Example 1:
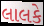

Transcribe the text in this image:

લાલકે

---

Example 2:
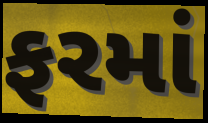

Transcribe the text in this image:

ફરમાં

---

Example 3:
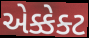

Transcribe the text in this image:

એક્કેક્ટ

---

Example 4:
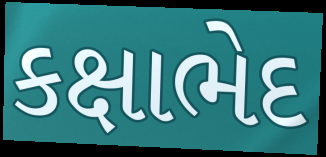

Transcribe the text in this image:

કક્ષાભેદ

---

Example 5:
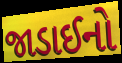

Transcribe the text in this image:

જાડાઈનો